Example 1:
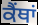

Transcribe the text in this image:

ਕੈਂਥਾਂ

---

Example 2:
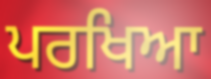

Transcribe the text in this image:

ਪਰਖਿਆ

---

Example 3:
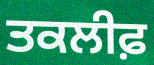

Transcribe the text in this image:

ਤਕਲੀਫ਼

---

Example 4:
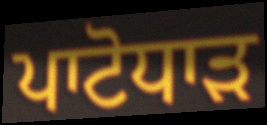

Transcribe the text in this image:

ਪਾਟੋਧਾੜ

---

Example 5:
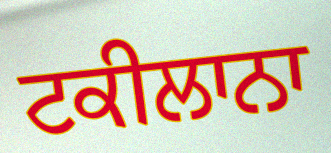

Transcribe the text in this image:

ਟਕੀਲਾਨਾ